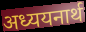
अध्ययनार्थ